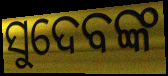
ସୁଦେବଙ୍କ